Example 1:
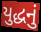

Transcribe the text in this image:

યુદ્ધનું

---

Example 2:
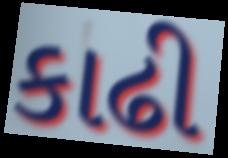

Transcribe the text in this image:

કાઢી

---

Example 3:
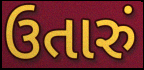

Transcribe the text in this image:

ઉતારું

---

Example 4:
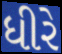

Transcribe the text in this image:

ધીરે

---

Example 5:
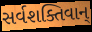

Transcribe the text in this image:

સર્વશક્તિવાન્